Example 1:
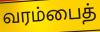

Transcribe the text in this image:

வரம்பைத்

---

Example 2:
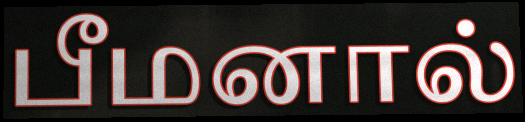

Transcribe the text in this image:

பீமனால்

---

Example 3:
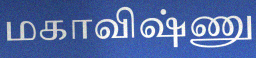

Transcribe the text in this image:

மகாவிஷ்ணு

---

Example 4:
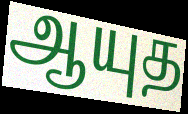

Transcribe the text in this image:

ஆயுத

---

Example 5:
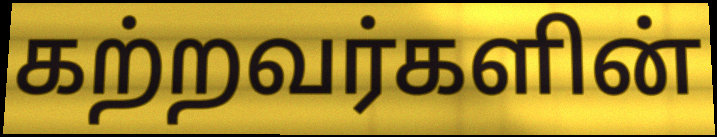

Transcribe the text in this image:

கற்றவர்களின்